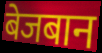
बेजबान